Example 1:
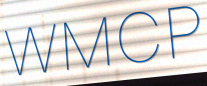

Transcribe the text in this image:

WMCP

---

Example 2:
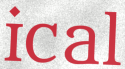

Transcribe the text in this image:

ical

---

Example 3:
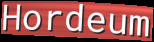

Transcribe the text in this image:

Hordeum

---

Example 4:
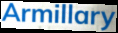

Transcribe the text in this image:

Armillary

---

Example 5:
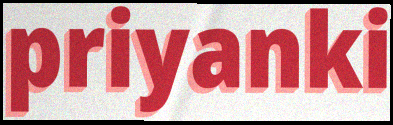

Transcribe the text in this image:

priyanki